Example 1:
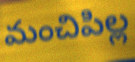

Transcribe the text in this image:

మంచిపిల్ల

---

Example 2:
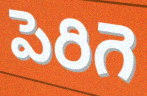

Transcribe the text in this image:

పెరిగె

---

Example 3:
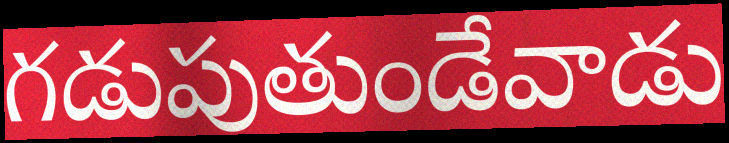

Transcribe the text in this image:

గడుపుతుండేవాడు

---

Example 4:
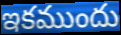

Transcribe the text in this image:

ఇకముందు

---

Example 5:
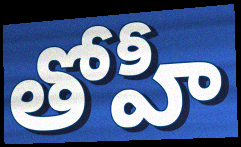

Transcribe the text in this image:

తోహీ